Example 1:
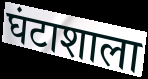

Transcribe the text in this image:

घंटाशाला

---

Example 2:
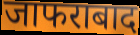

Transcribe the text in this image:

जाफराबाद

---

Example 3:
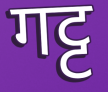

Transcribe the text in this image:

गट्ट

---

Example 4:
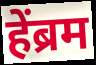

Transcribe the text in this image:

हेंब्रम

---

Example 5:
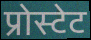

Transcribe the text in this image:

प्रोस्टेट